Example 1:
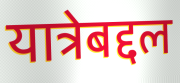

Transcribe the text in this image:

यात्रेबद्दल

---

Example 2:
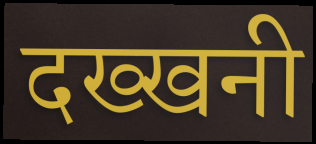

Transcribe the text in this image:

दख्खनी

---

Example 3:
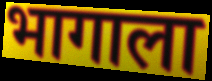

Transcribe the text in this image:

भागाला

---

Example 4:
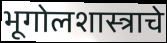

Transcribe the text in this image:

भूगोलशास्त्राचे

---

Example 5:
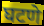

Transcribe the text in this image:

घटणे